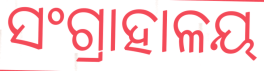
ସଂଗ୍ରାହାଳୟ